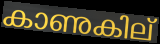
കാണുകില്